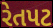
રેતપટ